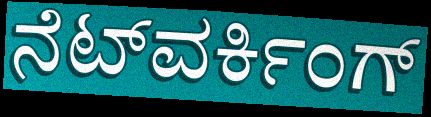
ನೆಟ್‌ವರ್ಕಿಂಗ್